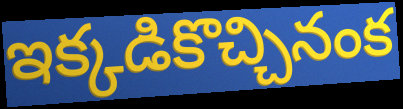
ఇక్కడికొచ్చినంక